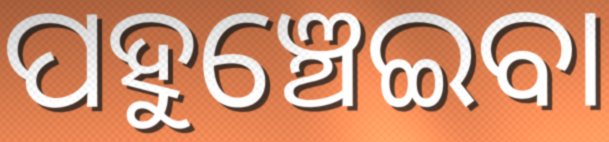
ପହୁଞ୍ଚେଇବା